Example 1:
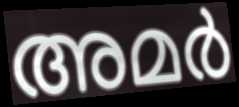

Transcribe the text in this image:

അമർ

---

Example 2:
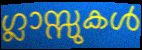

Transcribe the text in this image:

ഗ്ലാസ്സുകൾ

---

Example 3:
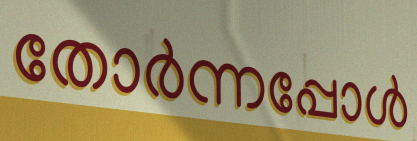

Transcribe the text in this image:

തോർന്നപ്പോൾ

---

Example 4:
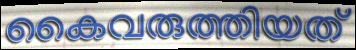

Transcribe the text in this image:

കൈവരുത്തിയത്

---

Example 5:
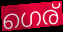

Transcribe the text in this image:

ഗെര്